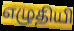
எழுதியி